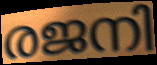
രജനി